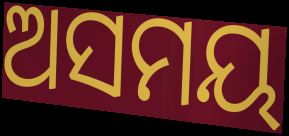
ଅସମୟ